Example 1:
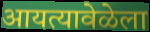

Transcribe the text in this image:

आयत्यावेळेला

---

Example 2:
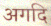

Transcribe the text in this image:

अगदि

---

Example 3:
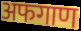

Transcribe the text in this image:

अफगाण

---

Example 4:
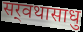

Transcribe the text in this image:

सर्वथासाधु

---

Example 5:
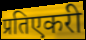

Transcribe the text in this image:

प्रतिएकरी